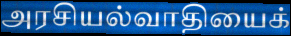
அரசியல்வாதியைக்